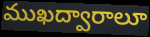
ముఖద్వారాలూ